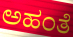
ಅಹಂತೆ